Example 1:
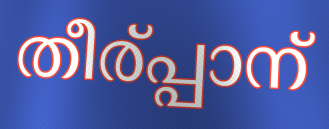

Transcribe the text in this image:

തീര്പ്പാന്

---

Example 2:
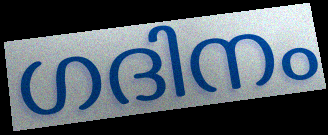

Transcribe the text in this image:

ഗദിനം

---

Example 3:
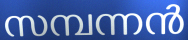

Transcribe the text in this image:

സമ്പന്നൻ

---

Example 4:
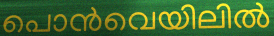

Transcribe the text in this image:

പൊൻവെയിലിൽ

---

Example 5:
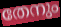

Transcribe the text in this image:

തേനും